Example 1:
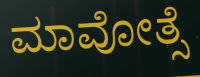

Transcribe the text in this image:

ಮಾವೋತ್ಸೆ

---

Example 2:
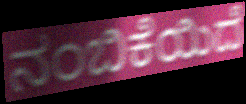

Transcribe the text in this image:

ನಂಬಿಕೆಯಿದೆ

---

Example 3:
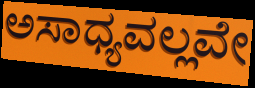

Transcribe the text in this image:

ಅಸಾಧ್ಯವಲ್ಲವೇ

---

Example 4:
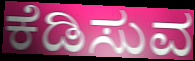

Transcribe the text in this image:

ಕೆಡಿಸುವ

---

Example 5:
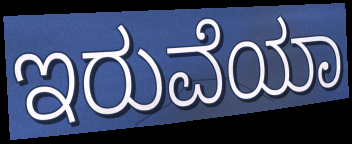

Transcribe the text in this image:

ಇರುವೆಯಾ